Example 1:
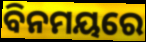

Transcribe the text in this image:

ବିନମୟରେ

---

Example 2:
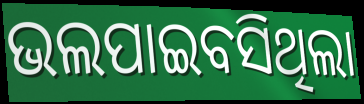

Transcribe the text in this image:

ଭଲପାଇବସିଥିଲା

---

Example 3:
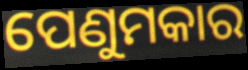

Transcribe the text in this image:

ପେଣୁମକାର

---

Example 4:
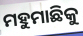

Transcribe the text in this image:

ମହୁମାଛିକୁ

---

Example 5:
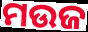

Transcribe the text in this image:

ମଉଜ